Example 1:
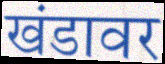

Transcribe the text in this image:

खंडावर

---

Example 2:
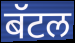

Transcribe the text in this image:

बॅटल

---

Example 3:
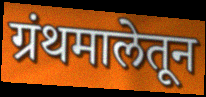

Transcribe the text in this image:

ग्रंथमालेतून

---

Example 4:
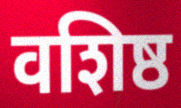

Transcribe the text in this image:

वशिष्ठ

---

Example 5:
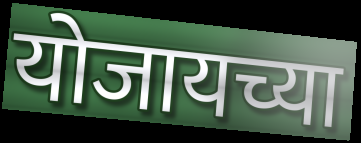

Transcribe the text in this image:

योजायच्या